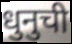
धुनुची